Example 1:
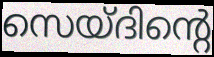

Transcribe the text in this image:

സെയ്ദിന്റെ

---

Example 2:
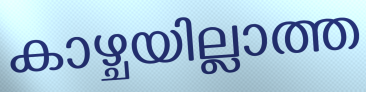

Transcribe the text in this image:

കാഴ്ചയില്ലാത്ത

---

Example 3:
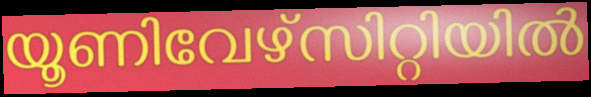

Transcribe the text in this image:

യൂണിവേഴ്സിറ്റിയിൽ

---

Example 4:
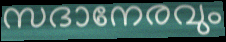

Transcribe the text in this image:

സദാനേരവും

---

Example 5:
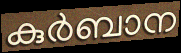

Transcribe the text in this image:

കുർബാന